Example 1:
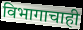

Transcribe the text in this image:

विभागाचाही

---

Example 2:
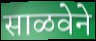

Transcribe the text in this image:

साळवेने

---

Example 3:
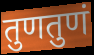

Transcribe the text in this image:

तुणतुणं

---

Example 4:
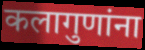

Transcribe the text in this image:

कलागुणांना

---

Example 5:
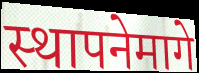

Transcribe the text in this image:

स्थापनेमागे